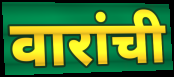
वारांची